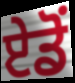
ਏਡੋਂ